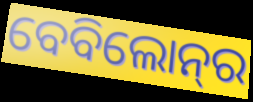
ବେବିଲୋନ୍‌ର